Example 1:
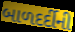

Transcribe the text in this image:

બાળદર્દીની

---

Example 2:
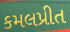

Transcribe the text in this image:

કમલપ્રીત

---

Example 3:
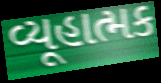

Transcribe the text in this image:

વ્યૂહાત્મક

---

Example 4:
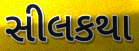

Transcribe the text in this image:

સીલકથા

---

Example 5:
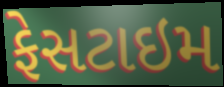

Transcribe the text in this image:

ફેસટાઇમ